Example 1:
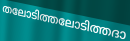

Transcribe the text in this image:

തലോടിത്തലോടിത്തദാ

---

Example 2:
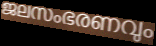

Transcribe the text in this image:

ജലസംഭരണവും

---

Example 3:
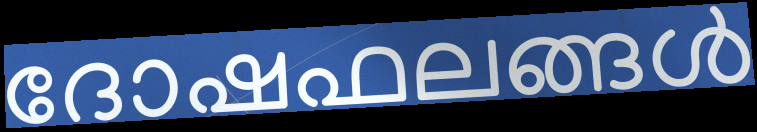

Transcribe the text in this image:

ദോഷഫലങ്ങൾ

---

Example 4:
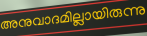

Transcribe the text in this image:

അനുവാദമില്ലായിരുന്നു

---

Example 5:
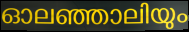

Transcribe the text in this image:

ഓലഞ്ഞാലിയും